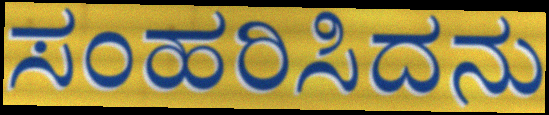
ಸಂಹರಿಸಿದನು